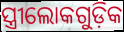
ସ୍ତ୍ରୀଲୋକଗୁଡ଼ିକ